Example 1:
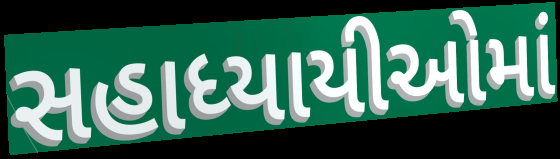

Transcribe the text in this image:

સહાધ્યાયીઓમાં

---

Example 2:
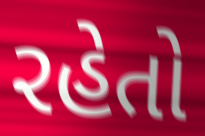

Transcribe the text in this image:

રહેતો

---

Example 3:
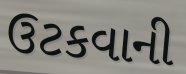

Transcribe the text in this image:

ઉટકવાની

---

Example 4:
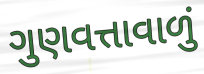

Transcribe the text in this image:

ગુણવત્તાવાળું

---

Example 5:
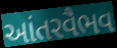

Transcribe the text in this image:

આંતરવૈભવ